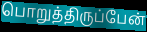
பொறுத்திருப்பேன்